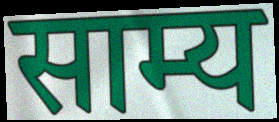
साम्‍य